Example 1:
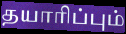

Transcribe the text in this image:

தயாரிப்பும்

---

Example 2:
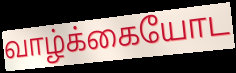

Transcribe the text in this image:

வாழ்க்கையோட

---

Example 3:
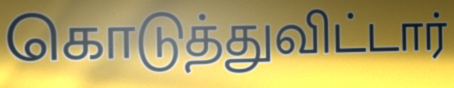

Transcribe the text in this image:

கொடுத்துவிட்டார்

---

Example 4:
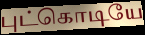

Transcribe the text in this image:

புட்கொடியே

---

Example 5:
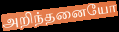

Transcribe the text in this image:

அறிந்தனையோ